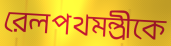
রেলপথমন্ত্রীকে